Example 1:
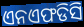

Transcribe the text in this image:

ଏନଏଫଡିସି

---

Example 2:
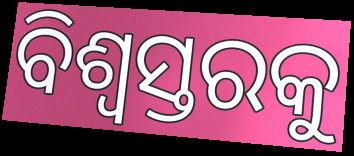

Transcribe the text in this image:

ବିଶ୍ୱସ୍ତରକୁ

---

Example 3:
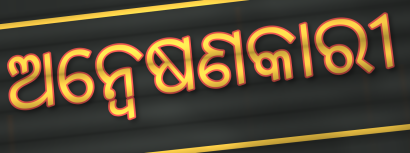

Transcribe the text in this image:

ଅନ୍ୱେଷଣକାରୀ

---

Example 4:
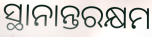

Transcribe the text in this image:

ସ୍ଥାନାନ୍ତରକ୍ଷମ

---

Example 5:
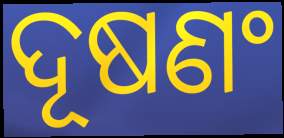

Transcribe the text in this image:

ଦୂଷଣଂ